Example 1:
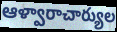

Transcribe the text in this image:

ఆళ్వారాచార్యుల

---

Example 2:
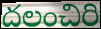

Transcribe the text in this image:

దలంచిరి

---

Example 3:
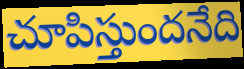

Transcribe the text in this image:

చూపిస్తుందనేది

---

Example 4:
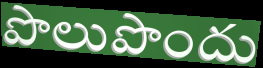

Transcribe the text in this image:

పొలుపొందు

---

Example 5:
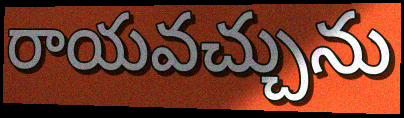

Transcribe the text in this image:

రాయవచ్చును